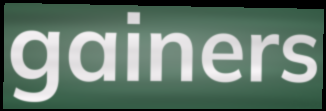
gainers